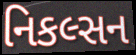
નિકલ્સન